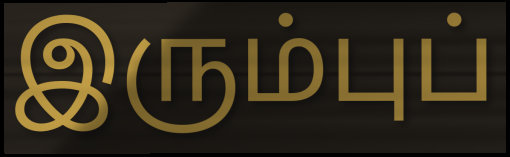
இரும்புப்